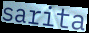
sarita